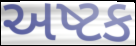
અષ્ટક